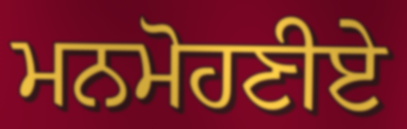
ਮਨਮੋਹਣੀਏ